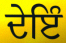
ਦੇਇੰ